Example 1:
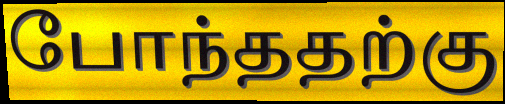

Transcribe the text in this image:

போந்ததற்கு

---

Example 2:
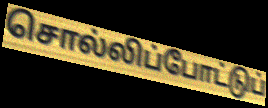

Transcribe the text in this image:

சொல்லிப்போட்டுப்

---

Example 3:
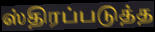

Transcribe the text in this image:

ஸ்திரப்படுத்த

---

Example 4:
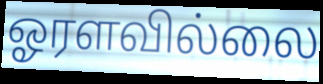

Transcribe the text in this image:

ஓரளவில்லை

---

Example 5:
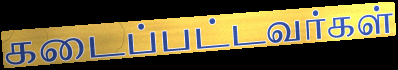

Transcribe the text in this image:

கடைப்பட்டவர்கள்